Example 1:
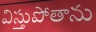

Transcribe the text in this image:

విస్తుపోతాను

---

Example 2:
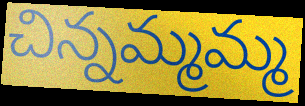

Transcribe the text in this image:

చిన్నమ్మమ్మ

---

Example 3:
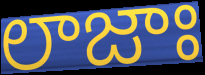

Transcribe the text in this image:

లాజాః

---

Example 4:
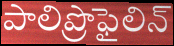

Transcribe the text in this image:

పాలిప్రొఫైలిన్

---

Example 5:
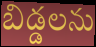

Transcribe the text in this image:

బిడ్డలను